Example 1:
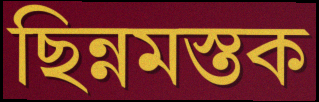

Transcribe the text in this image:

ছিন্নমস্তক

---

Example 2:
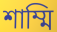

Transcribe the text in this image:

শাম্মি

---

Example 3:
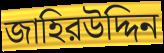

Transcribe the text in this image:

জাহিরউদ্দিন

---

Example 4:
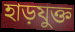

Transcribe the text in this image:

হাড়যুক্ত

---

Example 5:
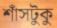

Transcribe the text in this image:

শাঁসটুকু